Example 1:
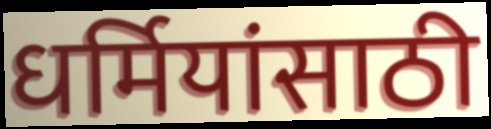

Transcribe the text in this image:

धर्मियांसाठी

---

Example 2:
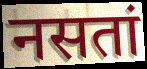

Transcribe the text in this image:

नसतां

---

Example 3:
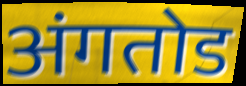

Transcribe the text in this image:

अंगतोड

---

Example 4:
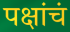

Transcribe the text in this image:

पक्षांचं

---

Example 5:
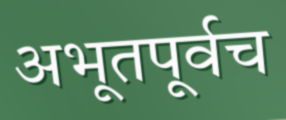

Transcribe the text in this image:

अभूतपूर्वच